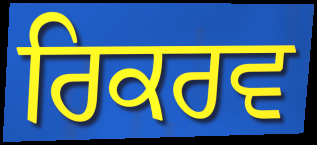
ਰਿਕਰਵ